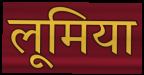
लूमिया